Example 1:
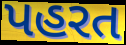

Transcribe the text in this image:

પહરત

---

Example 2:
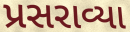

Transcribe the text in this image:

પ્રસરાવ્યા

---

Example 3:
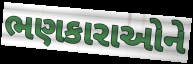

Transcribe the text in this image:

ભણકારાઓને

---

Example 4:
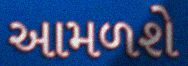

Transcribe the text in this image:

આમળશે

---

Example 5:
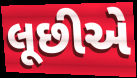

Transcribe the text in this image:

લૂછીએ